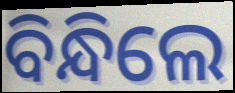
ବିନ୍ଧିଲେ